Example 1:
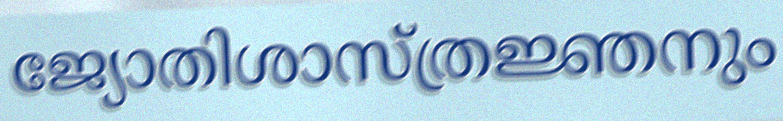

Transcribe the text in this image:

ജ്യോതിശാസ്ത്രജ്ഞനും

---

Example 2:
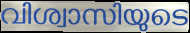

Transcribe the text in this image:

വിശ്വാസിയുടെ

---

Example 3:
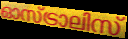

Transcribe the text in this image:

ഓസ്ട്രാലിസ്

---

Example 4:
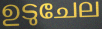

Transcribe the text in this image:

ഉടുചേല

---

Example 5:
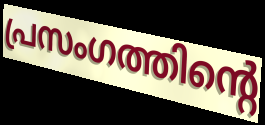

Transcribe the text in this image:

പ്രസംഗത്തിന്റെ